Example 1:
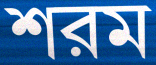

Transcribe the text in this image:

শরম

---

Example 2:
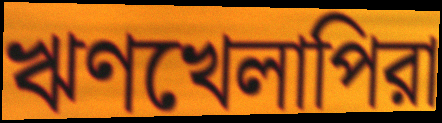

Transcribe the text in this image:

ঋণখেলাপিরা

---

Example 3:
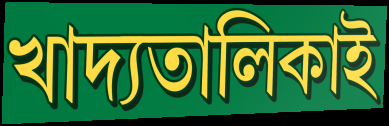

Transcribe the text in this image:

খাদ্যতালিকাই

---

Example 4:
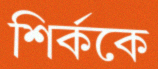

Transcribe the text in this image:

শির্ককে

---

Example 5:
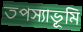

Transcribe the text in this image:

তপস্যাভূমি